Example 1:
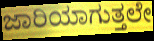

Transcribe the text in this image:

ಜಾರಿಯಾಗುತ್ತಲೇ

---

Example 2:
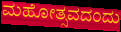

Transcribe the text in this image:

ಮಹೋತ್ಸವದಂದು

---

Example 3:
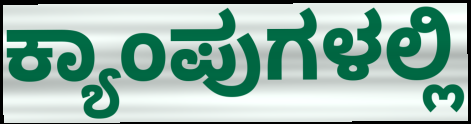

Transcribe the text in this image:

ಕ್ಯಾಂಪುಗಳಲ್ಲಿ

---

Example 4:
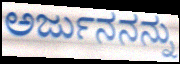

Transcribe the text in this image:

ಅರ್ಜುನನನ್ನು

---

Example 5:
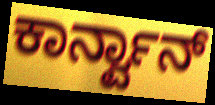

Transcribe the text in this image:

ಕಾರ್ನ್ವಾನ್